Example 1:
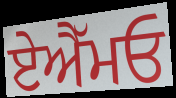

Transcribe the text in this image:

ਏਐੱਮਓ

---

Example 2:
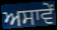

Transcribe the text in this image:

ਅਸਾਵੇਂ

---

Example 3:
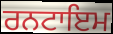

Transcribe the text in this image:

ਰਨਟਾਇਮ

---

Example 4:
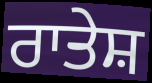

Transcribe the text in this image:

ਰਾਤੇਸ਼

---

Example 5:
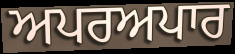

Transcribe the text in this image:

ਅਪਰਅਪਾਰ